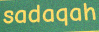
sadaqah